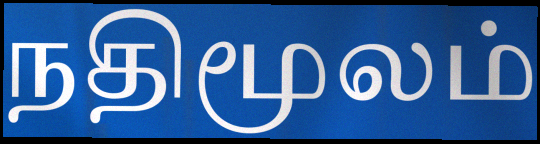
நதிமூலம்